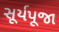
સૂર્યપૂજા